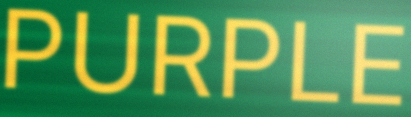
PURPLE